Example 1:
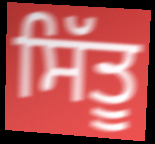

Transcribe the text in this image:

ਸਿੱਤੂ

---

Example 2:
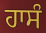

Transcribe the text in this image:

ਹਾਸੰ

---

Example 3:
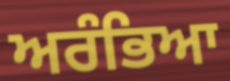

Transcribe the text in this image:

ਅਰੰਭਿਆ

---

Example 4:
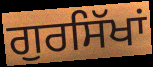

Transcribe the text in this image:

ਗੁਰਸਿੱਖਾਂ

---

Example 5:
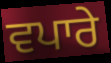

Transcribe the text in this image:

ਵਪਾਰੇ